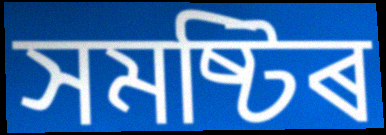
সমষ্টিৰ